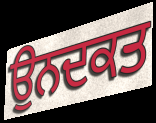
ਉਨਦਕਤ